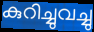
കുറിച്ചുവച്ചു